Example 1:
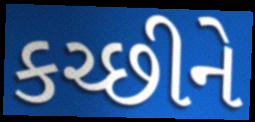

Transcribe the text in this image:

કચ્છીને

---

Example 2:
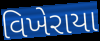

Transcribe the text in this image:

વિખેરાયા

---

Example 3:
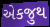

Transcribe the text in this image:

એકજુથ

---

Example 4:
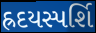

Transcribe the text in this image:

હ્રદયસ્પર્શિ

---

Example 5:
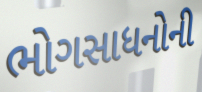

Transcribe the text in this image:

ભોગસાધનોની